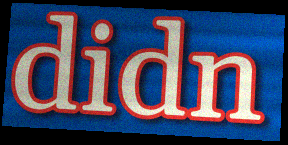
didn